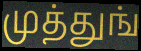
முத்துங்